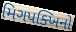
મિગપક્ખિનો